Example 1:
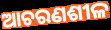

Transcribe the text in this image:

ଆଚରଣଶୀଳ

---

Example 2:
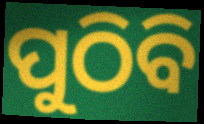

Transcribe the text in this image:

ପୁଠିବି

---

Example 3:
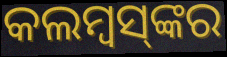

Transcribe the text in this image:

କଲମ୍ୱସ୍‌ଙ୍କର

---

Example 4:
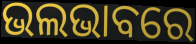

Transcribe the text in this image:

ଭଲଭାବରେ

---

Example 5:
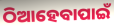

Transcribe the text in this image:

ଠିଆହେବାପାଇଁ